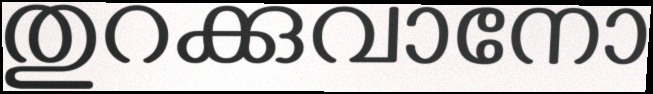
തുറക്കുവാനോ